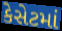
કેસેટમાં